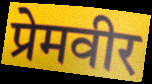
प्रेमवीर